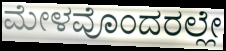
ಮೇಳವೊಂದರಲ್ಲೇ